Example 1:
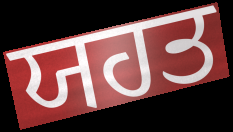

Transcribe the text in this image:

ਯਹਤ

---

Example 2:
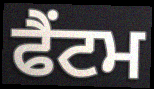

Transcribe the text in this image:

ਫੈਂਟਮ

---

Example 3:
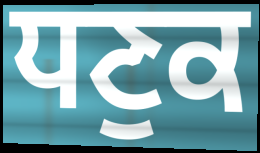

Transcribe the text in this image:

ਧਣੁਕ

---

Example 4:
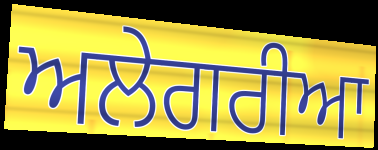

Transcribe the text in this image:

ਅਲੇਗਰੀਆ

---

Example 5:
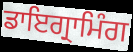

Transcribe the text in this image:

ਡਾਇਗ੍ਰਾਮਿੰਗ